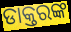
ଡାକ୍ତରଙ୍କ